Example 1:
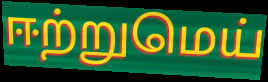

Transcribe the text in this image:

ஈற்றுமெய்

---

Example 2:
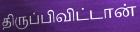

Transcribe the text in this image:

திருப்பிவிட்டான்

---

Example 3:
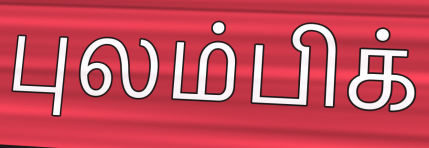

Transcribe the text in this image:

புலம்பிக்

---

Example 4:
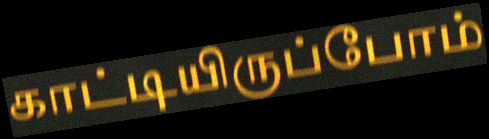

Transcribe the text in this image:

காட்டியிருப்போம்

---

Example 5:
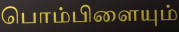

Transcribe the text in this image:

பொம்பிளையும்